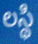
లస్థి